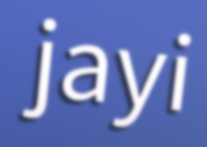
jayi